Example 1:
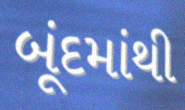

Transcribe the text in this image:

બૂંદમાંથી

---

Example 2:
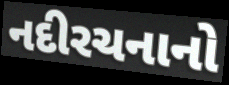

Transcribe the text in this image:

નદીરચનાનો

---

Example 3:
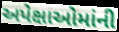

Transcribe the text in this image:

અપેક્ષાઓમાંની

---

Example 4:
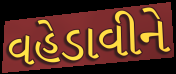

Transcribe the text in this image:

વહેડાવીને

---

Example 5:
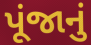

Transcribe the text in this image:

પૂંજાનું